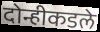
दोन्हीकडले